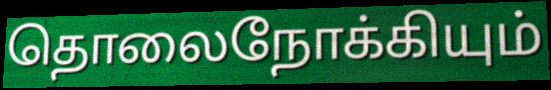
தொலைநோக்கியும்